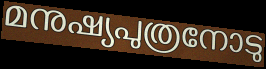
മനുഷ്യപുത്രനോടു